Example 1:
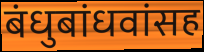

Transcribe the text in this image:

बंधुबांधवांसह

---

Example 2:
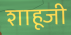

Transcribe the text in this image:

शाहूजी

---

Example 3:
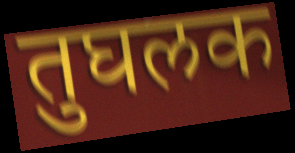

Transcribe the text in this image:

तुघलक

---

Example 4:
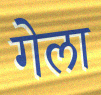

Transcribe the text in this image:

गेला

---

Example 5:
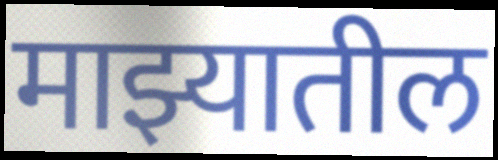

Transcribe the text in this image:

माझ्यातील